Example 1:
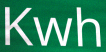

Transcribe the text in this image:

Kwh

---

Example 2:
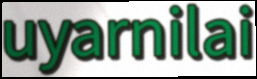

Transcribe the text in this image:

uyarnilai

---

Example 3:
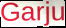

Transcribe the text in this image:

Garju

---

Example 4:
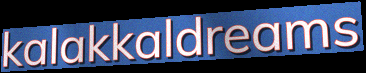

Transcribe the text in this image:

kalakkaldreams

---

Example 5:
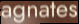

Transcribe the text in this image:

agnates